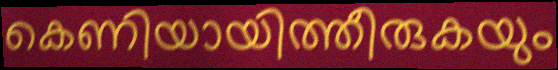
കെണിയായിത്തീരുകയും